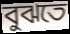
বুঝতে